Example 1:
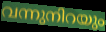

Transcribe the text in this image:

വന്നുനിറയും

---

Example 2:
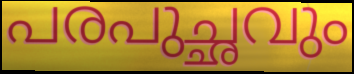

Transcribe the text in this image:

പരപുച്ഛവും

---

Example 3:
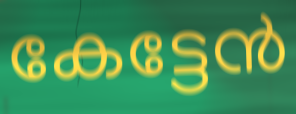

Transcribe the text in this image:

കേട്ടേൻ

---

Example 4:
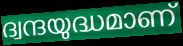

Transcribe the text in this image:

ദ്വന്ദയുദ്ധമാണ്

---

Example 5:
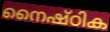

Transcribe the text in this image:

നൈഷ്ഠിക